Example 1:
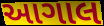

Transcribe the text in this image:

આગાલ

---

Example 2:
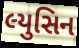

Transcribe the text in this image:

લ્યુસિન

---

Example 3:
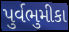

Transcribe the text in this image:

પુર્વભુમીકા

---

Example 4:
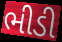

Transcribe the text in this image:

ભીડી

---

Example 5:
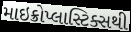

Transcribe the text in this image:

માઇક્રોપ્લાસ્ટિક્સથી